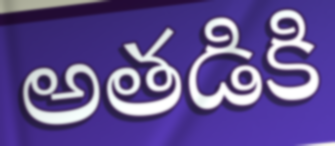
అతడికి